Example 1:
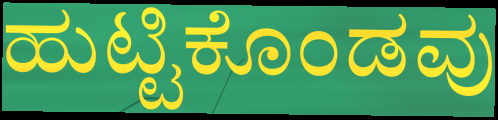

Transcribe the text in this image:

ಹುಟ್ಟಿಕೊಂಡವು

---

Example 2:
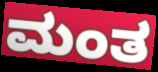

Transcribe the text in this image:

ಮಂತ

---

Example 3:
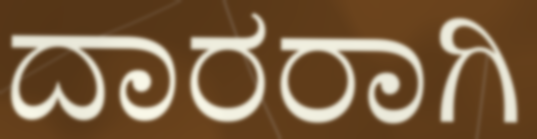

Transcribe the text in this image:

ದಾರರಾಗಿ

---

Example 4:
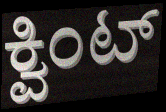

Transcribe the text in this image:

ಕ್ವಿಂಟ್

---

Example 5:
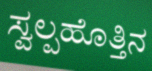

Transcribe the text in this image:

ಸ್ವಲ್ಪಹೊತ್ತಿನ